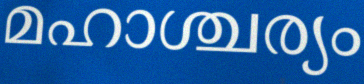
മഹാശ്ചര്യം